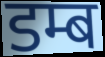
डम्ब